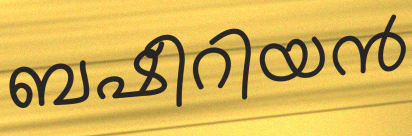
ബഷീറിയൻ